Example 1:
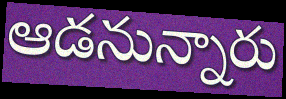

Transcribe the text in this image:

ఆడనున్నారు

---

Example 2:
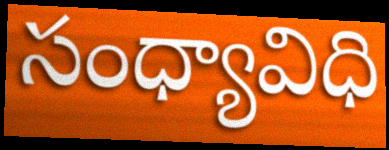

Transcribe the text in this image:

సంధ్యావిధి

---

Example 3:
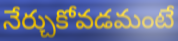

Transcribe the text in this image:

నేర్చుకోవడమంటే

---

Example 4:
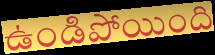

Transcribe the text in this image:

ఉండిపోయింది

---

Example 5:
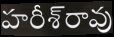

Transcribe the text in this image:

హరీశ్‌రావు